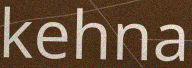
kehna